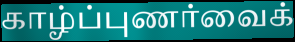
காழ்ப்புணர்வைக்